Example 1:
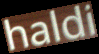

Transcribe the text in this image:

haldi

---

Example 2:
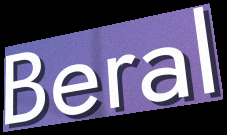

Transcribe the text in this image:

Beral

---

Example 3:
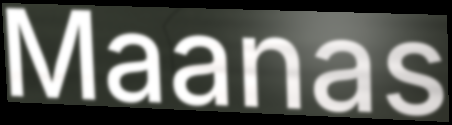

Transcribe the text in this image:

Maanas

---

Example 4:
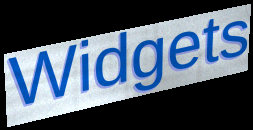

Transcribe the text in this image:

Widgets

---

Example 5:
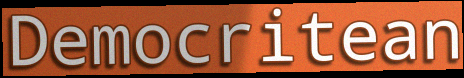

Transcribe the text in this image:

Democritean